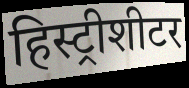
हिस्ट्रीशीटर